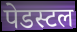
पेडस्टल